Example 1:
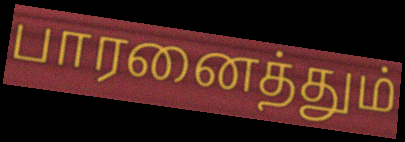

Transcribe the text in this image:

பாரனைத்தும்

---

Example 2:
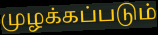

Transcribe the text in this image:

முழக்கப்படும்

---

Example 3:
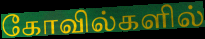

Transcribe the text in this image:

கோவில்களில்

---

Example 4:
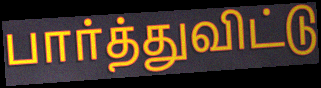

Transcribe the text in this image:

பார்த்துவிட்டு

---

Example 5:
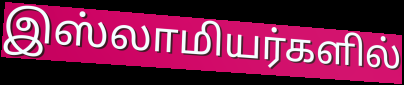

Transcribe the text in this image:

இஸ்லாமியர்களில்